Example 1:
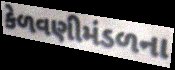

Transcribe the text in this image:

કેળવણીમંડળના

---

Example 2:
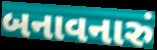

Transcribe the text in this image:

બનાવનારું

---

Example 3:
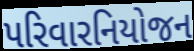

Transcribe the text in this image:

પરિવારનિયોજન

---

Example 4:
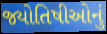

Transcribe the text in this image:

જ્યોતિષીઓનું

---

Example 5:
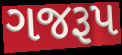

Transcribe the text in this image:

ગજરૂપ